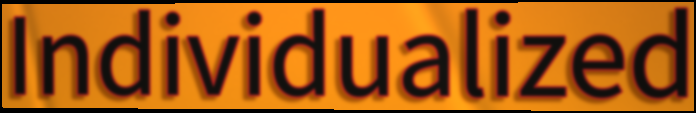
Individualized